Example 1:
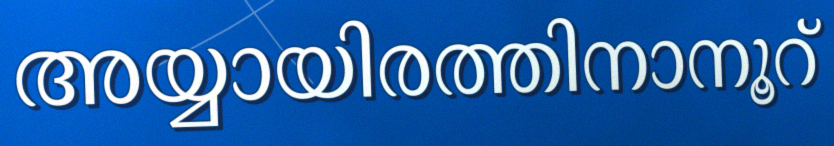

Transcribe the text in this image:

അയ്യായിരത്തിനാനൂറ്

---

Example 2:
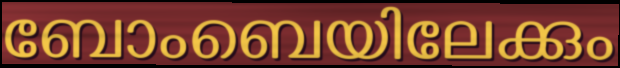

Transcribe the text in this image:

ബോംബെയിലേക്കും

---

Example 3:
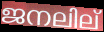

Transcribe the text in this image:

ജനലില്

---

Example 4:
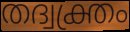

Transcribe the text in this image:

തദ്വക്ത്രം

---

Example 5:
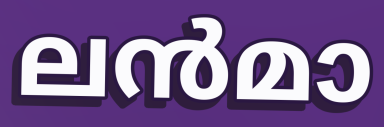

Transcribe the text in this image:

ലൻമാ